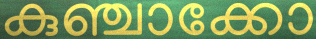
കുഞ്ചാക്കോ